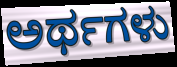
ಅರ್ಥಗಳು